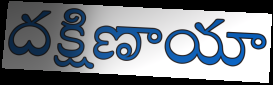
దక్షిణాయా